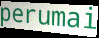
perumai